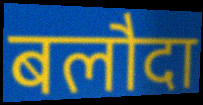
बलौदा